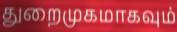
துறைமுகமாகவும்